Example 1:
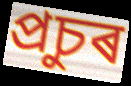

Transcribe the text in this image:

প্ৰচুৰ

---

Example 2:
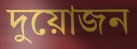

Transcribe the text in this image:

দুয়োজন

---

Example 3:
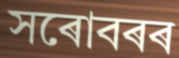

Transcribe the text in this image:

সৰোবৰৰ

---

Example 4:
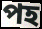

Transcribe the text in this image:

পহ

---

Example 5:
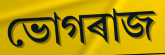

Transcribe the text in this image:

ভোগৰাজ